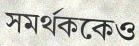
সমর্থককেও